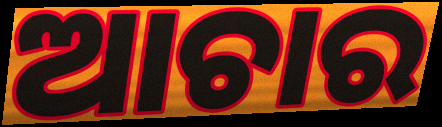
ଆଚାର